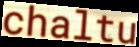
chaltu